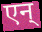
एन्